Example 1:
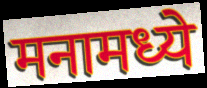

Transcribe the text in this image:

मनामध्ये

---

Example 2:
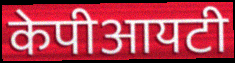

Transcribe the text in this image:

केपीआयटी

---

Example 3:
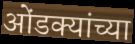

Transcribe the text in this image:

ओंडक्यांच्या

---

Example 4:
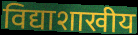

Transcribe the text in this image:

विद्याशाखीय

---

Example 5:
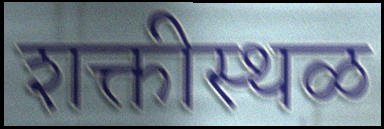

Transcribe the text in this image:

शक्तीस्थळ